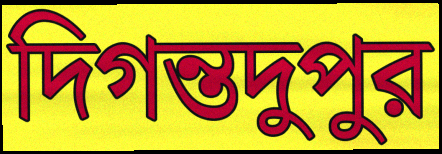
দিগন্তদুপুর